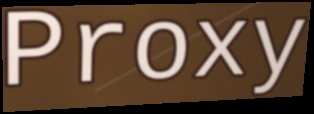
Proxy